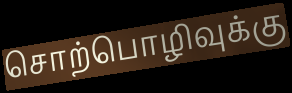
சொற்பொழிவுக்கு